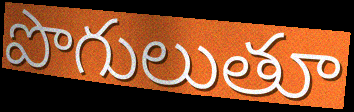
పొగులుతూ